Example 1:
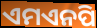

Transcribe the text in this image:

ଏମଏନପି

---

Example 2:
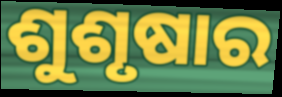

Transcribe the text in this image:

ଶୁଶୃଷାର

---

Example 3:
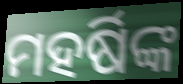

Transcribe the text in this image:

ମହର୍ଷିଙ୍କ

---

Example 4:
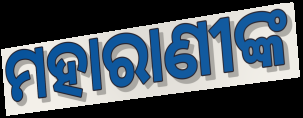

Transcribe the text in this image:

ମହାରାଣୀଙ୍କ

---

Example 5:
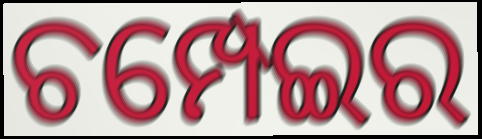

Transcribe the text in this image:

ଚମ୍ପେଇର